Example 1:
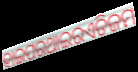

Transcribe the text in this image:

ହାଇପରଥାଇରଏଡିଜମ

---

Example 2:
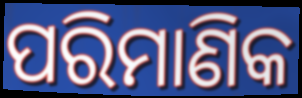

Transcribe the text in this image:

ପରିମାଣିକ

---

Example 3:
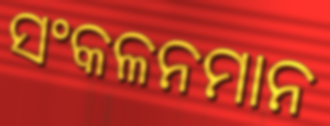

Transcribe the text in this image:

ସଂକଳନମାନ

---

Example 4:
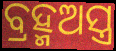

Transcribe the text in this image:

ବ୍ରହ୍ମଅସ୍ତ୍ର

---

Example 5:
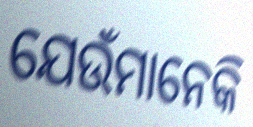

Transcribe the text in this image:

ଯେଉଁମାନେକି